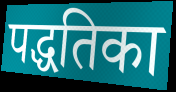
पद्धतिका